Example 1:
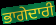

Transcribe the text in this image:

ਭਾਗੇਦਾਰੀ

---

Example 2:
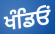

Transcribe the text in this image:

ਖੰਡਿਓਂ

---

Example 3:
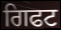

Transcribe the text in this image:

ਗਿਫਟ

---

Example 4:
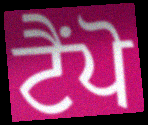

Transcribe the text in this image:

ਟੈਂਪੋ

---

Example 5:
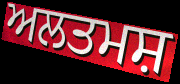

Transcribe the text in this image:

ਅਲਤਮਸ਼